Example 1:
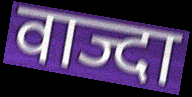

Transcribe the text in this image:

वाज्दा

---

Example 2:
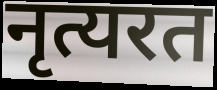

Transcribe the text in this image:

नृत्यरत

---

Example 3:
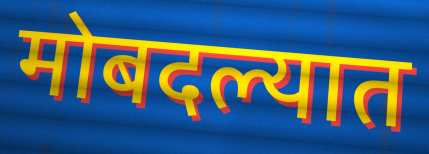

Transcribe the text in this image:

मोबदल्यात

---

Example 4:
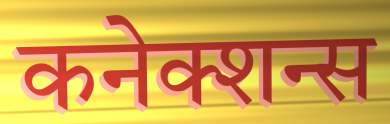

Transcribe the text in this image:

कनेक्शन्स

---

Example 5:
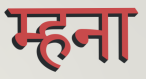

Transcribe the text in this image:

म्हना